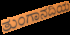
ತುಂಗಾನದಿಯ